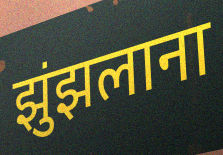
झुंझलाना